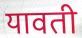
यावती